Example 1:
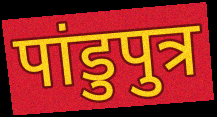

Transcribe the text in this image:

पांडुपुत्र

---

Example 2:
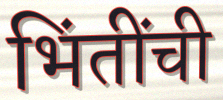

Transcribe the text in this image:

भिंतींची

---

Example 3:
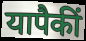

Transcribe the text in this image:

यापैकीं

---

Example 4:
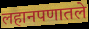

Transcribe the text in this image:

लहानपणातले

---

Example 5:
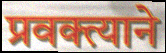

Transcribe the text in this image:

प्रवक्‍त्याने